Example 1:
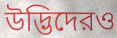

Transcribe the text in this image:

উদ্ভিদেরও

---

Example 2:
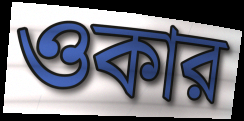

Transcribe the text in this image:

ওকার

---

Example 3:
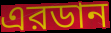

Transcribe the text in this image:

এরডান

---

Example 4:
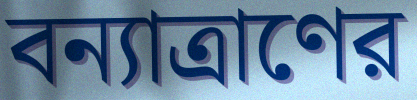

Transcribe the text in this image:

বন্যাত্রাণের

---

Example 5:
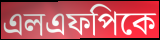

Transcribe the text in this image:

এলএফপিকে